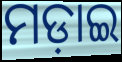
ମଡ଼ାଇ